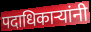
पदाधिकाऱ्यांनी